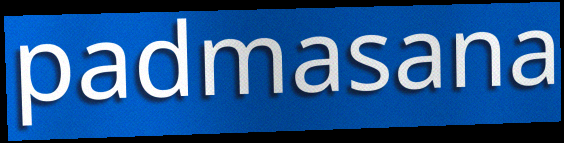
padmasana